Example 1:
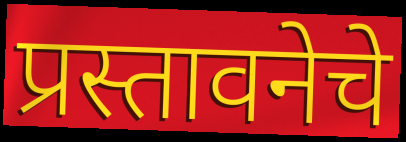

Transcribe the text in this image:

प्रस्तावनेचे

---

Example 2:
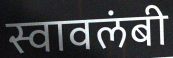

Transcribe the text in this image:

स्वावलंबी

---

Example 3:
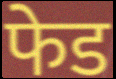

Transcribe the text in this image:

फेड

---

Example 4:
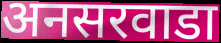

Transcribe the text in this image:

अनसरवाडा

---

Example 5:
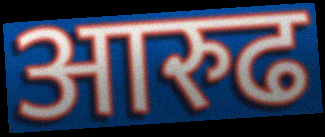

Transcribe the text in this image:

आरुढ